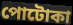
পোটোকা